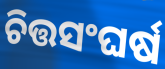
ଚିତ୍ତସଂଘର୍ଷ